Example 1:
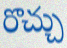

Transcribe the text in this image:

రొచ్చు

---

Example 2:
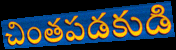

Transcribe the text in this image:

చింతపడకుడి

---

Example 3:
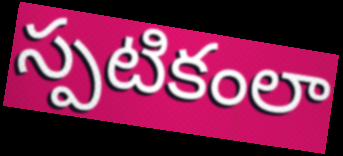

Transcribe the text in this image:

స్పటికంలా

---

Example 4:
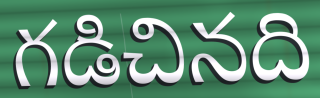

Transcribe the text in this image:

గడిచినది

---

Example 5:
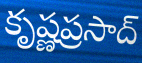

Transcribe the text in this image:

కృష్ణప్రసాద్